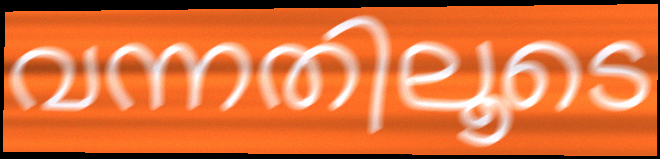
വന്നതിലൂടെ